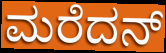
ಮರೆದನ್